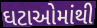
ઘટાઓમાંથી